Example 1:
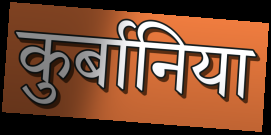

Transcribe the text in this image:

कुर्बानिया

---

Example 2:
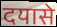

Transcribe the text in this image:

दयासे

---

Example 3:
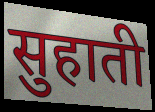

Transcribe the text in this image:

सुहाती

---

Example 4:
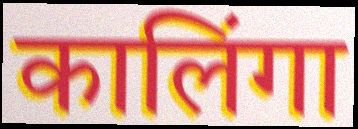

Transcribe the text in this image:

कालिंगा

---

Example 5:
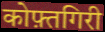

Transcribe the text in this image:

कोफ़्तगिरी